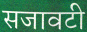
सजावटी